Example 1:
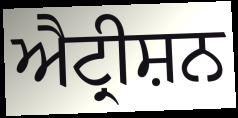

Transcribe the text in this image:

ਐਟ੍ਰੀਸ਼ਨ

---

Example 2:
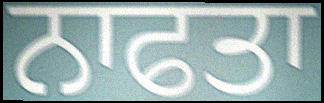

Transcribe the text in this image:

ਨਾਫਤਾ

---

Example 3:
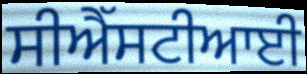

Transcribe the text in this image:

ਸੀਐੱਸਟੀਆਈ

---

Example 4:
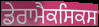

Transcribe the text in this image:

ਡੇਰਾਮੈਕਸਿਕਸ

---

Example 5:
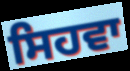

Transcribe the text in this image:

ਸਿਹਵਾ